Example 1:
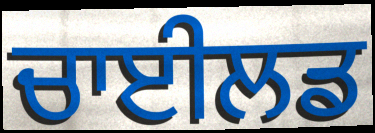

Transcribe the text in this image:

ਚਾਈਲਡ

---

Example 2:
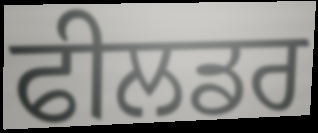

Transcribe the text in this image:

ਫੀਲਡਰ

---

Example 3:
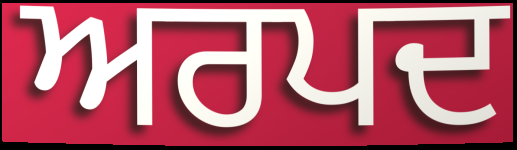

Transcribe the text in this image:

ਅਰਪਦ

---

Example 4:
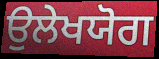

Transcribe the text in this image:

ਉਲੇਖਯੋਗ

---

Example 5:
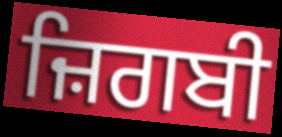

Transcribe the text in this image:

ਜ਼ਿਗਬੀ